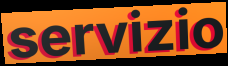
servizio